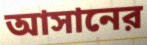
আসানের